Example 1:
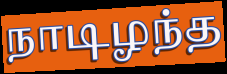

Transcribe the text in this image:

நாடிழந்த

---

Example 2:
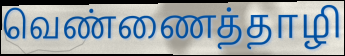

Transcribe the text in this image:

வெண்ணைத்தாழி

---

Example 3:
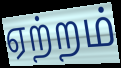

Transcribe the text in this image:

ஏற்றம்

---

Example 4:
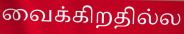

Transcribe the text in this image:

வைக்கிறதில்ல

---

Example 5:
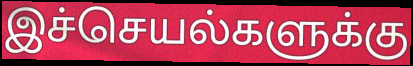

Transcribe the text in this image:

இச்செயல்களுக்கு